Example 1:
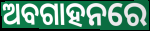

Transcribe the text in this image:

ଅବଗାହନରେ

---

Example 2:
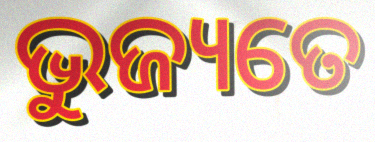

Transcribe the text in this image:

ଭୁଜ୍ୟତେ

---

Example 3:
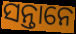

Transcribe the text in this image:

ସନ୍ତାନେ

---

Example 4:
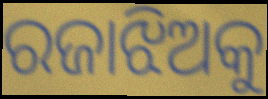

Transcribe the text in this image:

ରଜାଝିଅକୁ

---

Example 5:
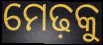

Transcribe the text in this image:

ମେଢ଼କୁ